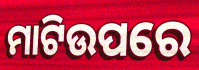
ମାଟିଉପରେ